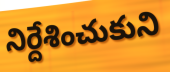
నిర్దేశించుకుని